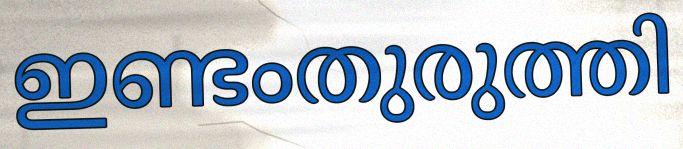
ഇണ്ടംതുരുത്തി